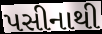
પસીનાથી